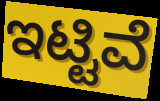
ಇಟ್ಟಿವೆ